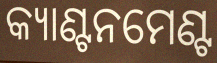
କ୍ୟାଣ୍ଟନମେଣ୍ଟ